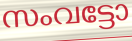
സംവട്ടോ